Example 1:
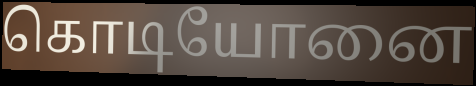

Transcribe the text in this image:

கொடியோனை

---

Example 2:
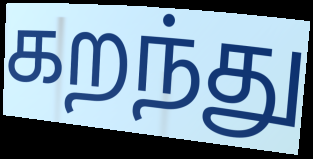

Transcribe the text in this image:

கறந்து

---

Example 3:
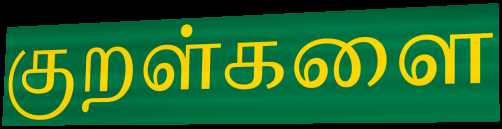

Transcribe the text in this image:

குறள்களை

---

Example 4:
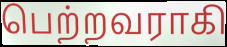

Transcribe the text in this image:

பெற்றவராகி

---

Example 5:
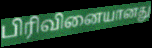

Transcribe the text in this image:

பிரிவினையானது